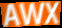
AWX